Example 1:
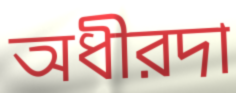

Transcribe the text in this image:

অধীরদা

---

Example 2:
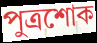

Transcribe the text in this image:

পুত্রশোক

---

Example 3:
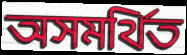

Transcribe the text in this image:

অসমর্থিত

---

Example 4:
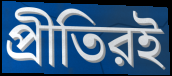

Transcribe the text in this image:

প্রীতিরই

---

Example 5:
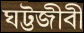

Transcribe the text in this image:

ঘট্টজীবী